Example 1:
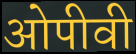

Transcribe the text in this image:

ओपीवी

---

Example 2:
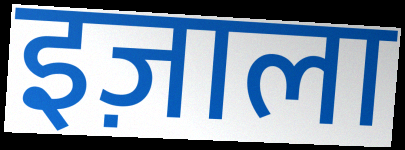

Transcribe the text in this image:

इज़ाला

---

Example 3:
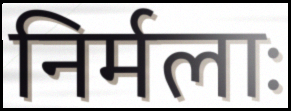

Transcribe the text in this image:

निर्मलाः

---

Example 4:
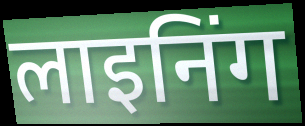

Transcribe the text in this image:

लाइनिंग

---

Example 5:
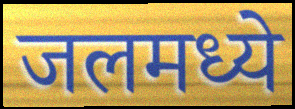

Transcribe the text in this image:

जलमध्ये